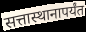
सत्तास्थानापर्यंत